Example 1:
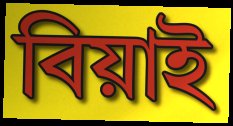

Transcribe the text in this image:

বিয়াই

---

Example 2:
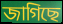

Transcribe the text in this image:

জাগিছে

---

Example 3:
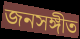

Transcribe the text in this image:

জনসঙ্গীত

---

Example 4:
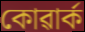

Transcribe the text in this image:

কোৱাৰ্ক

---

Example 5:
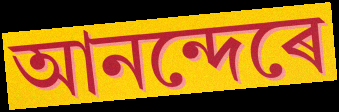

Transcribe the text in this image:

আনন্দেৰে